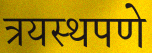
त्रयस्थपणे